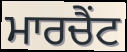
ਮਾਰਚੈਂਟ